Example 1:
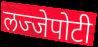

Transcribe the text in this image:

लज्जेपोटी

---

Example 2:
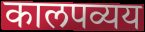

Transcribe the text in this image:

कालपव्यय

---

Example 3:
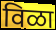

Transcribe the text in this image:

विळा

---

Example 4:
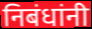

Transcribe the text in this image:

निबंधांनी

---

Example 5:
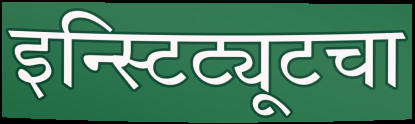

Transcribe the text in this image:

इन्स्टिट्यूटचा